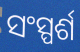
ସଂସ୍ପର୍ଶ